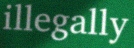
illegally